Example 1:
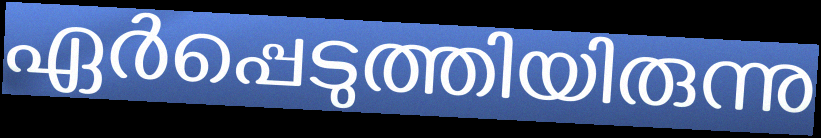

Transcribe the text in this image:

ഏർപ്പെടുത്തിയിരുന്നു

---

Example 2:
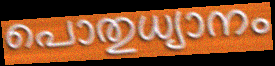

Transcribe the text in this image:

പൊതുധ്യാനം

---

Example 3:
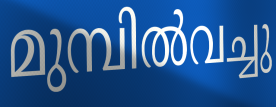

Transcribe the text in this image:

മുമ്പിൽവച്ചു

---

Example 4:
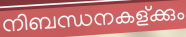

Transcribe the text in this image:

നിബന്ധനകള്ക്കും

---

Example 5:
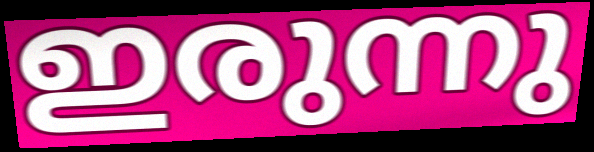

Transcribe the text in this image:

ഇരുന്നു